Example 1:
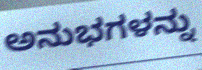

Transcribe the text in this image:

ಅನುಭಗಳನ್ನು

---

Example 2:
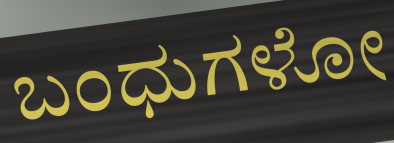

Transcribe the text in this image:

ಬಂಧುಗಳೋ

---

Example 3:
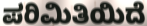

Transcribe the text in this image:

ಪರಿಮಿತಿಯಿದೆ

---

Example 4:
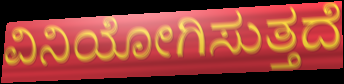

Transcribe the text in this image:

ವಿನಿಯೋಗಿಸುತ್ತದೆ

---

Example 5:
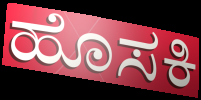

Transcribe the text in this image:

ಹೊಸಕಿ